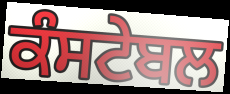
ਕੰਸਟੇਬਲ